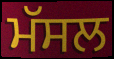
ਮੱਸਲ